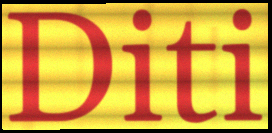
Diti